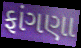
ફાંગણા